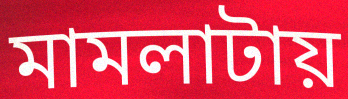
মামলাটায়